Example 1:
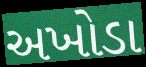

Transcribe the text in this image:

અખોડા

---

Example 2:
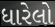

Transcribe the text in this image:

ધારેલો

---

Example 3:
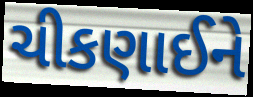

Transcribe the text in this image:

ચીકણાઈને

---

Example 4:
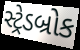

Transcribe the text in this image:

સ્ટ્રેડબ્રોક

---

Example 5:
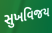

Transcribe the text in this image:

સુખવિજય